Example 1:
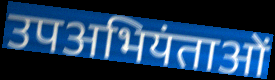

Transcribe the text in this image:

उपअभियंताओं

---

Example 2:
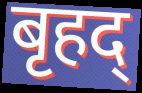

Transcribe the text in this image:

बृहद्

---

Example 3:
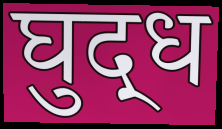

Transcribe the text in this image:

घुद्ध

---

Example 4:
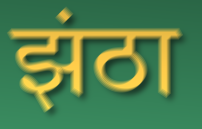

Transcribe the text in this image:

झंठा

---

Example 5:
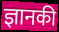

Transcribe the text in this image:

ज्ञानकी